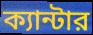
ক্যান্টার